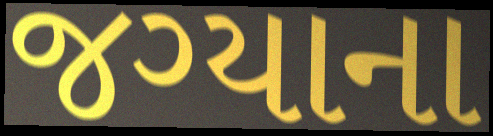
જગ્યાના